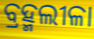
ବ୍ରହ୍ମଲୀଳା